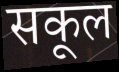
सकूल